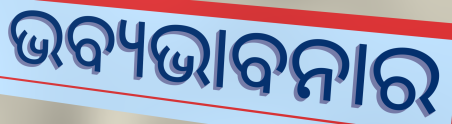
ଭବ୍ୟଭାବନାର